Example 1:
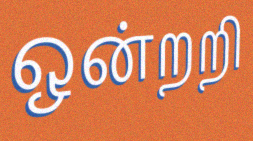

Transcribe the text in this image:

ஒன்றறி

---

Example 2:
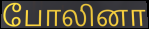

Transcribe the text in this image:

போலினா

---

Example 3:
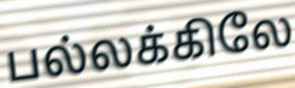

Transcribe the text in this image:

பல்லக்கிலே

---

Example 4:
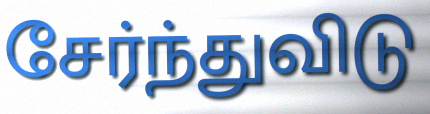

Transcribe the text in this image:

சேர்ந்துவிடு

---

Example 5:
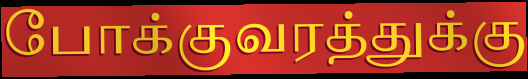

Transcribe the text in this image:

போக்குவரத்துக்கு